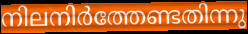
നിലനിർത്തേണ്ടതിന്നു